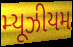
મ્યૂઝીયમ